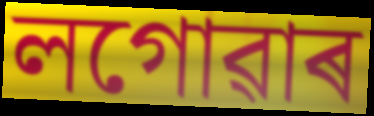
লগোৱাৰ